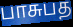
பாசுபத